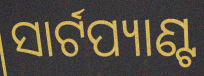
ସାର୍ଟପ୍ୟାଣ୍ଟ